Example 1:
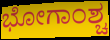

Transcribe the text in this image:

ಭೋಗಾಂಶ್ಚ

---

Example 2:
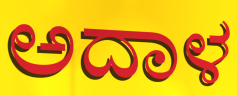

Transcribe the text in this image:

ಅದಾಳ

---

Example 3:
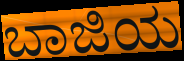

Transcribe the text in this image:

ಬಾಜಿಯ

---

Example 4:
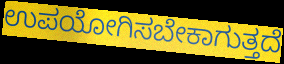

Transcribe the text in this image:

ಉಪಯೋಗಿಸಬೇಕಾಗುತ್ತದೆ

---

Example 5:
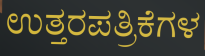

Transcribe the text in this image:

ಉತ್ತರಪತ್ರಿಕೆಗಳ